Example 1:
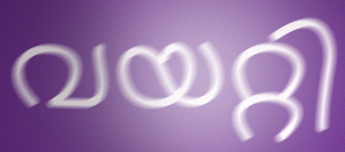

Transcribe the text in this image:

വയറ്റി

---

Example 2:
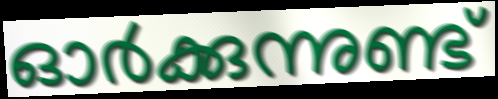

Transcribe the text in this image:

ഓർക്കുന്നുണ്ട്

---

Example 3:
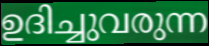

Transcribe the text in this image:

ഉദിച്ചുവരുന്ന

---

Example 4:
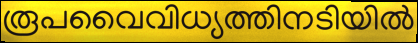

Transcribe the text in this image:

രൂപവൈവിധ്യത്തിനടിയിൽ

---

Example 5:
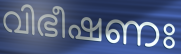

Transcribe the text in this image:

വിഭീഷണഃ